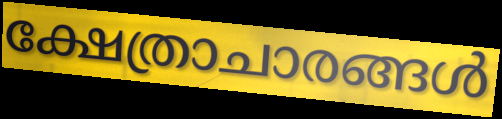
ക്ഷേത്രാചാരങ്ങൾ